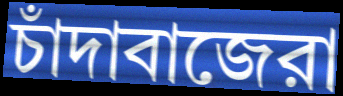
চাঁদাবাজেরা